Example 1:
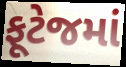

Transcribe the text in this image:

ફૂટેજમાં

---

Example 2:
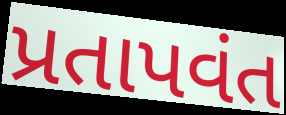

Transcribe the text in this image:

પ્રતાપવંત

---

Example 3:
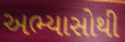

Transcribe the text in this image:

અભ્યાસોથી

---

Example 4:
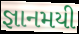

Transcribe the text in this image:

જ્ઞાનમયી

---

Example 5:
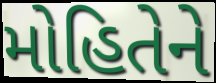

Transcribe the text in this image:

મોહિતેને